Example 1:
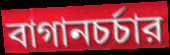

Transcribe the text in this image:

বাগানচর্চার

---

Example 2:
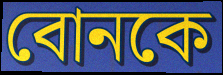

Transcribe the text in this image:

বোনকে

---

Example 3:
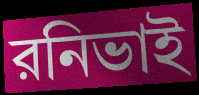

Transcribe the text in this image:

রনিভাই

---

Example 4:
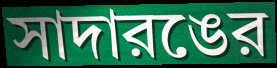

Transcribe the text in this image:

সাদারঙের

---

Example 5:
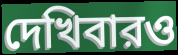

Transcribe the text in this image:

দেখিবারও